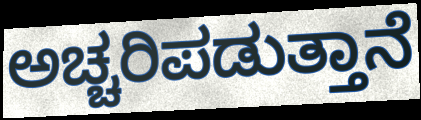
ಅಚ್ಚರಿಪಡುತ್ತಾನೆ